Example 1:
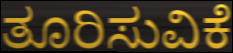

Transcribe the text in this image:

ತೂರಿಸುವಿಕೆ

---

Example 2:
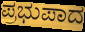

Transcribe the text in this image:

ಪ್ರಭುಪಾದ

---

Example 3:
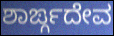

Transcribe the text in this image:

ಶಾರ್ಙ್ಗದೇವ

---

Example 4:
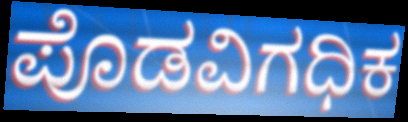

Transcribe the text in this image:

ಪೊಡವಿಗಧಿಕ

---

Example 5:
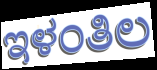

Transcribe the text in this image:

ಇಳಂತಿಲ